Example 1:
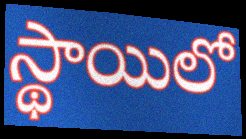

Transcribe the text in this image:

స్థాయిలో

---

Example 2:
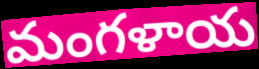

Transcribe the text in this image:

మంగళాయ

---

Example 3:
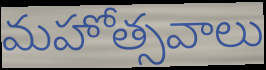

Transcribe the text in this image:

మహోత్సవాలు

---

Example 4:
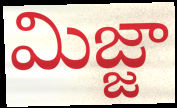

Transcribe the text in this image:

మిజ్జా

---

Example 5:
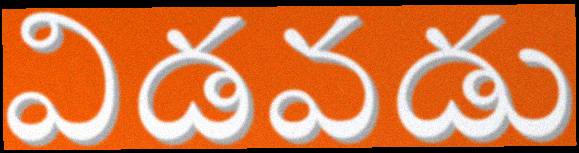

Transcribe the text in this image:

విడవడు